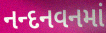
નન્દનવનમાં